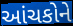
આંચકોને